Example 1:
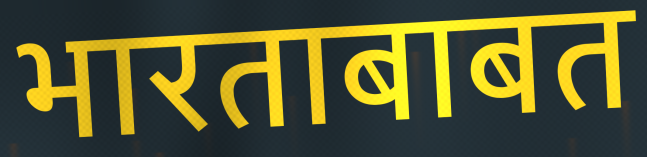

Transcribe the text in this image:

भारताबाबत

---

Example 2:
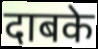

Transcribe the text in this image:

दाबके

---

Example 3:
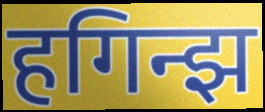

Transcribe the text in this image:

हगिन्झ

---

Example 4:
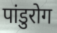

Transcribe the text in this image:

पांडुरोग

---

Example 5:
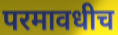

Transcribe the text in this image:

परमावधीच